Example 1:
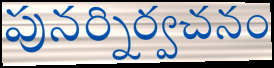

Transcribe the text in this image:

పునర్నిర్వచనం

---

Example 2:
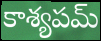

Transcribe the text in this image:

కాశ్యపమ్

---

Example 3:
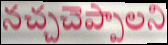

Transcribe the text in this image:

నచ్చచెప్పాలని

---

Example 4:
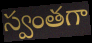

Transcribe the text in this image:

స్వంతగా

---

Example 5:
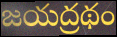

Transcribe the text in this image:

జయద్రథం